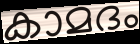
കാമദം